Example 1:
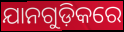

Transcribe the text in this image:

ଯାନଗୁଡ଼ିକରେ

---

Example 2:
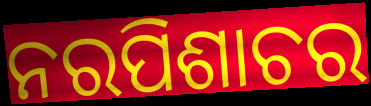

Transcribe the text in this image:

ନରପିଶାଚର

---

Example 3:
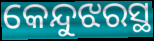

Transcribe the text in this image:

କେନ୍ଦୁଝରସ୍ଥ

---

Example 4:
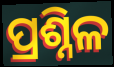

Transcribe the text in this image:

ପ୍ରଶ୍ନିଳ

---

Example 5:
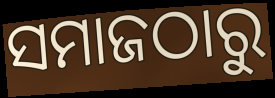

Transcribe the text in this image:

ସମାଜଠାରୁ